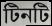
টিনটি